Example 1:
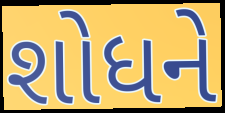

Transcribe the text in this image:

શોધને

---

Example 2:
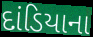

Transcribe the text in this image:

દાંડિયાના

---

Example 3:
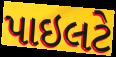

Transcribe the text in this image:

પાઇલટે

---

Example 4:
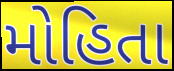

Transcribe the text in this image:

મોહિતા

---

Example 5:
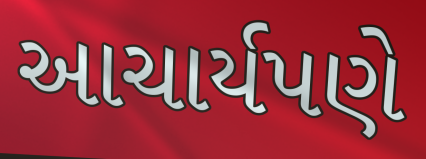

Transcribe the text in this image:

આચાર્યપણે